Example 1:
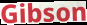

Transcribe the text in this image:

Gibson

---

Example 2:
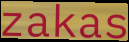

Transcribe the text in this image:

zakas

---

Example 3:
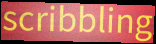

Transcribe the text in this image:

scribbling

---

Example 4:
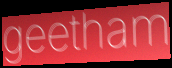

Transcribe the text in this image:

geetham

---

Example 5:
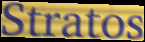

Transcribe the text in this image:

Stratos